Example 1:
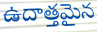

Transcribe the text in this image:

ఉదాత్తమైన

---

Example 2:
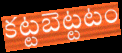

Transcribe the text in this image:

కట్టబెట్టటం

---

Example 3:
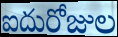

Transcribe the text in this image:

ఐదురోజుల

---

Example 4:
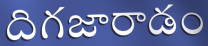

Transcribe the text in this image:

దిగజారాడం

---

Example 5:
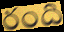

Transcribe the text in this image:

రంది